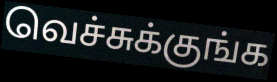
வெச்சுக்குங்க